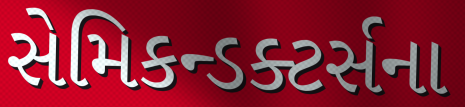
સેમિકન્ડક્ટર્સના